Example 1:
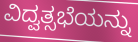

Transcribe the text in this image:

ವಿದ್ವತ್ಸಭೆಯನ್ನು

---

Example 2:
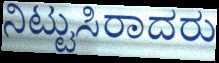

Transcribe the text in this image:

ನಿಟ್ಟುಸಿರಾದರು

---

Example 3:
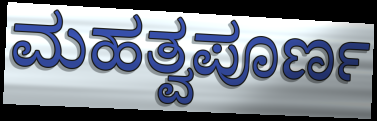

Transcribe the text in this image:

ಮಹತ್ವಪೂರ್ಣ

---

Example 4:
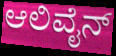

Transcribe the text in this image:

ಆಲಿವೈನ್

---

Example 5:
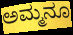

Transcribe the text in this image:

ಅಮ್ಮನೂ